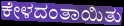
ಕೇಳದಂತಾಯಿತು